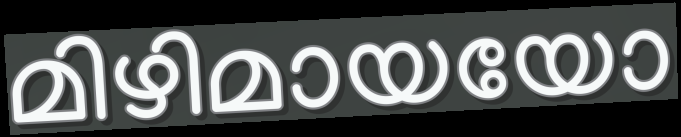
മിഴിമായയോ